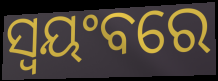
ସ୍ଵୟଂବରେ